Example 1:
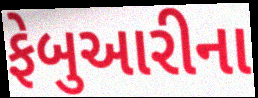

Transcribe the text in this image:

ફેબુઆરીના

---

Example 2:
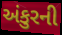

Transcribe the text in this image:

અંકુરની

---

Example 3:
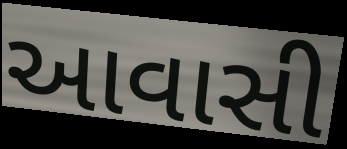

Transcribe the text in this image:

આવાસી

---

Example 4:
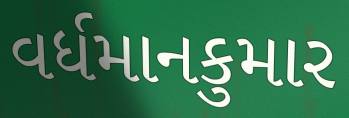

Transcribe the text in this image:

વર્ધમાનકુમાર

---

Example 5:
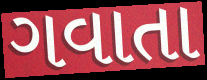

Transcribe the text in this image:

ગવાતા